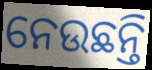
ନେଉଛନ୍ତି